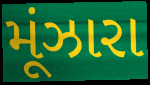
મૂંઝારા